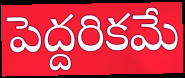
పెద్దరికమే